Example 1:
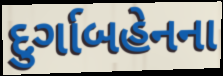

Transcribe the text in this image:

દુર્ગાબહેનના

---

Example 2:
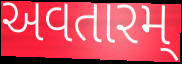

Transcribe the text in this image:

અવતારમ્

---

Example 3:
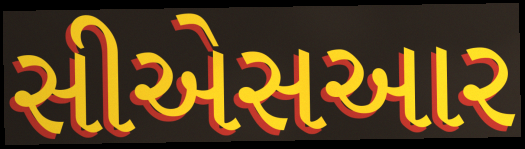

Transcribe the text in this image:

સીએસઆર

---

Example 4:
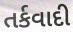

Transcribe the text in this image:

તર્કવાદી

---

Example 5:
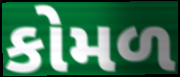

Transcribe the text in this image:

કોમળ